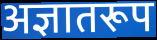
अज्ञातरूप